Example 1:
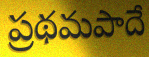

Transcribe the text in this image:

ప్రథమపాదే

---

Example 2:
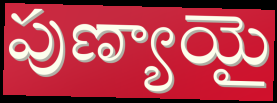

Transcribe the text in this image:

పుణ్యాయై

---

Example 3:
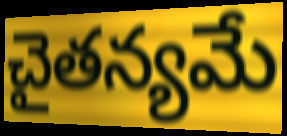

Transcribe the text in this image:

చైతన్యమే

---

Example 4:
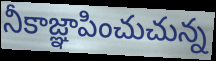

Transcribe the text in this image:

నీకాజ్ఞాపించుచున్న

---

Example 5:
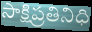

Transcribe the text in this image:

సాక్షిప్రతినిధి